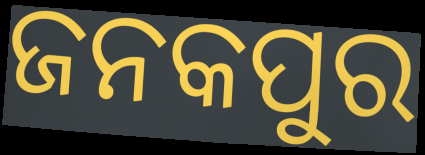
ଜନକପୁର